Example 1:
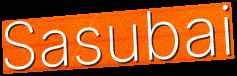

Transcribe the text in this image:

Sasubai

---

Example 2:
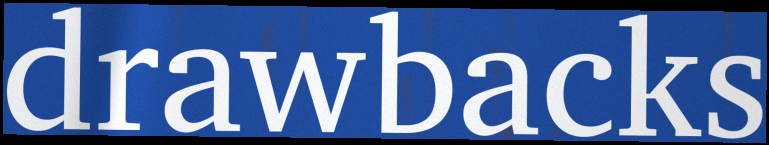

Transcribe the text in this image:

drawbacks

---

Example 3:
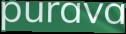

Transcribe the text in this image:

purava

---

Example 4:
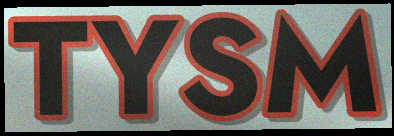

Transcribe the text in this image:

TYSM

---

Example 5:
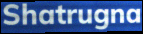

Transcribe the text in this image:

Shatrugna